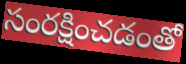
సంరక్షించడంతో